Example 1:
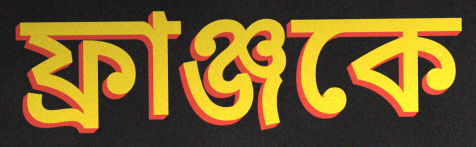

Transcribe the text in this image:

ফ্রাঞ্জকে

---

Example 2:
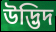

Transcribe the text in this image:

উদ্ভিদ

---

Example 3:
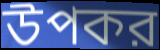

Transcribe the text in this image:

উপকর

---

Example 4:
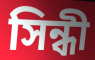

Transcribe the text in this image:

সিন্ধী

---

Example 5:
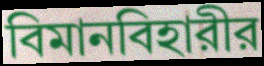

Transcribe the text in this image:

বিমানবিহারীর